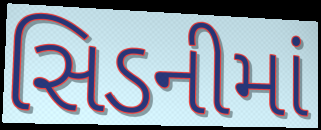
સિડનીમાં